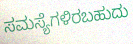
ಸಮಸ್ಯೆಗಳಿರಬಹುದು